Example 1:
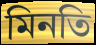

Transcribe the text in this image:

মিনতি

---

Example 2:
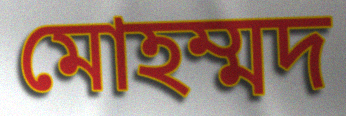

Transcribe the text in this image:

মোহম্মদ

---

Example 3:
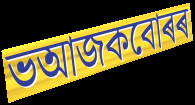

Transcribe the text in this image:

ভআজকবোৰৰ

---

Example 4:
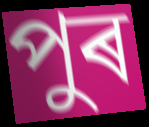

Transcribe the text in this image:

পুৰ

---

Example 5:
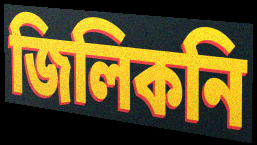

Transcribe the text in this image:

জিলিকনি